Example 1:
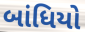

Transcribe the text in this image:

બાંધિયો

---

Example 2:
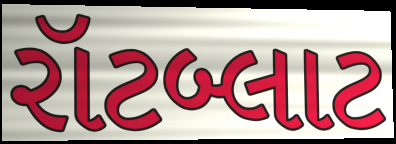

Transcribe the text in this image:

રૉટબ્લાટ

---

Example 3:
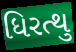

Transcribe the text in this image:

ધિરત્થુ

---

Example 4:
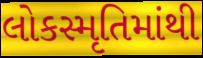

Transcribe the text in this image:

લોકસ્મૃતિમાંથી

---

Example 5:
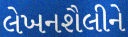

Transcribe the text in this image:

લેખનશૈલીને